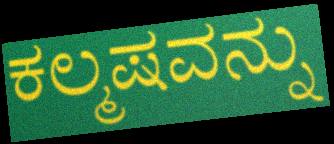
ಕಲ್ಮಷವನ್ನು